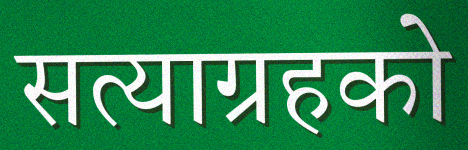
सत्याग्रहको